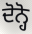
ਦੋਨ੍ਹੋ